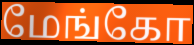
மேங்கோ